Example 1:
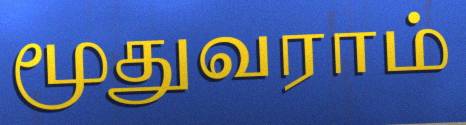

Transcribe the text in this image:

மூதுவராம்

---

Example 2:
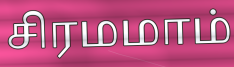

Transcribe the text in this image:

சிரமமாம்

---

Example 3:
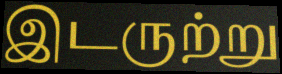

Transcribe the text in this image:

இடருற்று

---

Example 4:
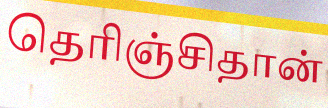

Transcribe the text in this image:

தெரிஞ்சிதான்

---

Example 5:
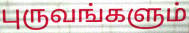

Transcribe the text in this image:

புருவங்களும்